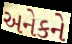
અનેકને